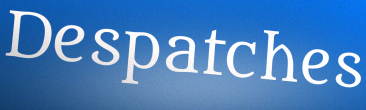
Despatches